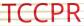
TCCPR